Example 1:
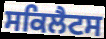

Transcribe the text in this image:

ਸਕਿਲੈਟਸ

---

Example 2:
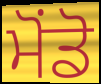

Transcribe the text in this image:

ਮੋਂਡੋ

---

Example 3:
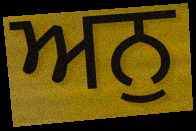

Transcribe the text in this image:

ਅਨੁ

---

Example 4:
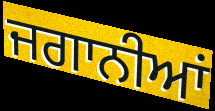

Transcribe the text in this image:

ਜਗਾਨੀਆਂ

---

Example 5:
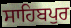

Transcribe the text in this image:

ਸਾਹਿਬਪੁਰ